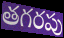
తగరపు